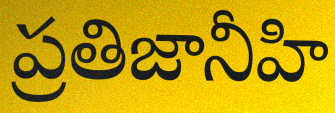
ప్రతిజానీహి